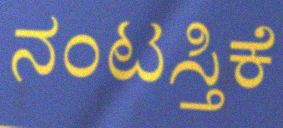
ನಂಟಸ್ತಿಕೆ